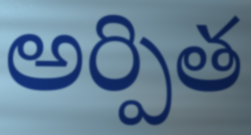
అర్పిత